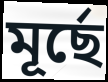
মূর্ছে